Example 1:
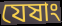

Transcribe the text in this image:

যেষাং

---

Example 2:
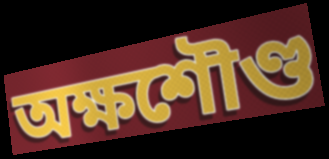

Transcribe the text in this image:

অক্ষশৌণ্ড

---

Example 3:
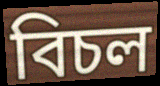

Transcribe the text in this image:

বিচল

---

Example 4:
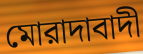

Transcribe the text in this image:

মোরাদাবাদী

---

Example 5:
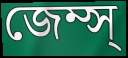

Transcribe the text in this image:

জেম্স্